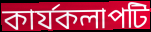
কার্যকলাপটি